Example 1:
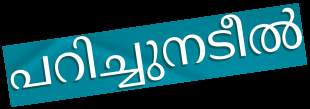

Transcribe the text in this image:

പറിച്ചുനടീൽ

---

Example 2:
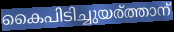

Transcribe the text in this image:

കൈപിടിച്ചുയര്ത്താന്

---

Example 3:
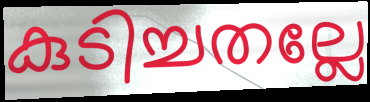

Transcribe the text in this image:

കുടിച്ചതല്ലേ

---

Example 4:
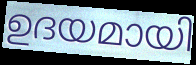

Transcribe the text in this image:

ഉദയമായി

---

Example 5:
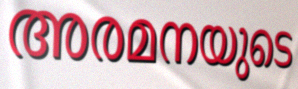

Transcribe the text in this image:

അരമനയുടെ